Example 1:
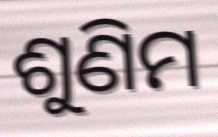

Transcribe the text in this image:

ଶୁଣିମ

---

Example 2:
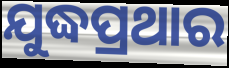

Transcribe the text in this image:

ଯୁଦ୍ଧପ୍ରଥାର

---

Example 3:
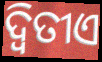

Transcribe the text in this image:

ଦ୍ୱିତୀଏ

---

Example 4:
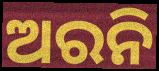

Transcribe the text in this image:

ଅରନି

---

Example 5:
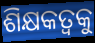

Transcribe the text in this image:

ଶିକ୍ଷକତ୍ଵକୁ